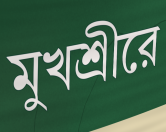
মুখশ্রীরে